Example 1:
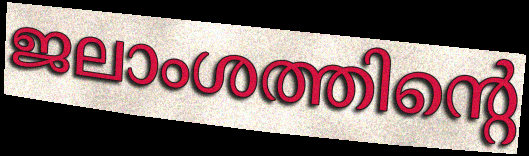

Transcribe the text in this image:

ജലാംശത്തിന്റെ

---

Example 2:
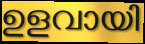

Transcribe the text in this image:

ഉളവായി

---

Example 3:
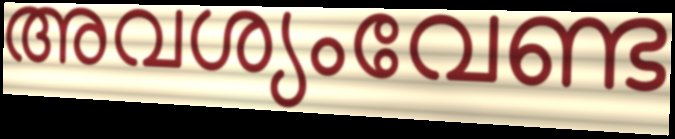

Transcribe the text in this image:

അവശ്യംവേണ്ട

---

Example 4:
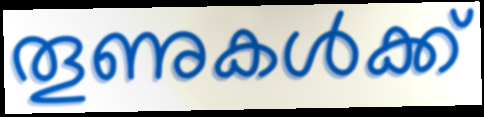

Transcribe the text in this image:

തൂണുകൾക്ക്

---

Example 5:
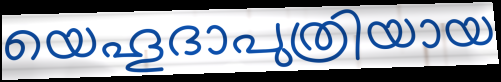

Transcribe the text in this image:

യെഹൂദാപുത്രിയായ